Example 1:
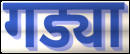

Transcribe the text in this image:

गड्या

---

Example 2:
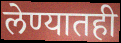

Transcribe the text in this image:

लेण्यातही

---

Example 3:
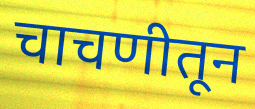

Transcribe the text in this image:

चाचणीतून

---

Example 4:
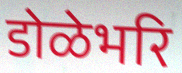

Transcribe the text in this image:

डोळेभरि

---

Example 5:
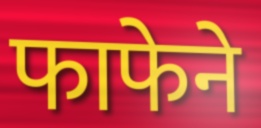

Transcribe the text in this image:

फाफेने